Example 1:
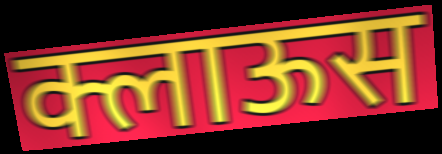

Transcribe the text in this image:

क्लाऊस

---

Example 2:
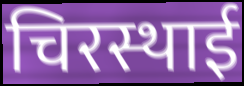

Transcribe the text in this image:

चिरस्थाई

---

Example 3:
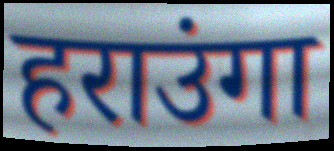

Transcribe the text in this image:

हराउंगा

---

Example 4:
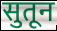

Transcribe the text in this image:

सुतून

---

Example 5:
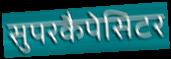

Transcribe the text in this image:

सुपरकैपेसिटर